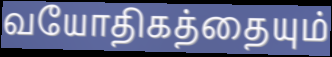
வயோதிகத்தையும்